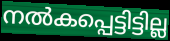
നൽകപ്പെട്ടിട്ടില്ല